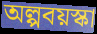
অল্পবয়স্কা